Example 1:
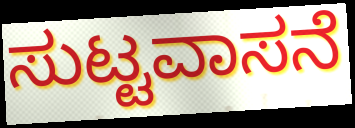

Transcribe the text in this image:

ಸುಟ್ಟವಾಸನೆ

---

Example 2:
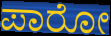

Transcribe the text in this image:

ಪಾರೋ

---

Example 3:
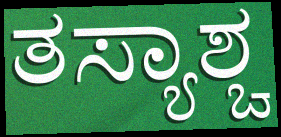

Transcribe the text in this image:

ತಸ್ಯಾಶ್ಚ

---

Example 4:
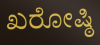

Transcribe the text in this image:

ಖರೋಷ್ಠಿ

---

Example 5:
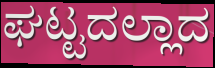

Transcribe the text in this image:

ಘಟ್ಟದಲ್ಲಾದ